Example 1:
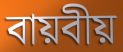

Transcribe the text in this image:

বায়বীয়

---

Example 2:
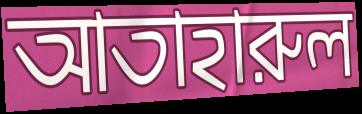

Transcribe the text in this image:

আতাহারুল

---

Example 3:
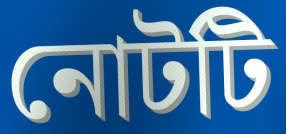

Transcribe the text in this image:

নোটটি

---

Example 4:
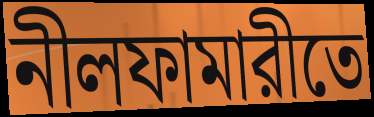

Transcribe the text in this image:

নীলফামারীতে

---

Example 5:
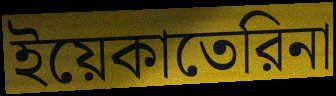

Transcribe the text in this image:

ইয়েকাতেরিনা